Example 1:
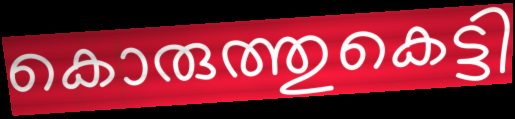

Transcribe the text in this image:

കൊരുത്തുകെട്ടി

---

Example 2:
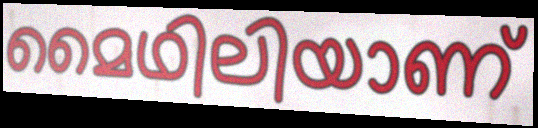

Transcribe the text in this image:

മൈഥിലിയാണ്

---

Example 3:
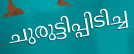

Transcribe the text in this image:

ചുരുട്ടിപ്പിടിച്ച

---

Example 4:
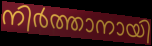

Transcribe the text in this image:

നിർത്താനായി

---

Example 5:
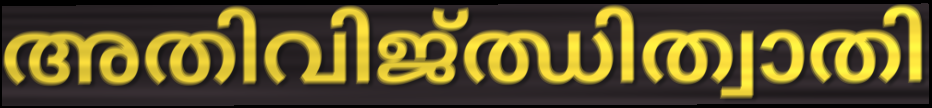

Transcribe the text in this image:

അതിവിജ്ഝിത്വാതി